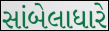
સાંબેલાધારે